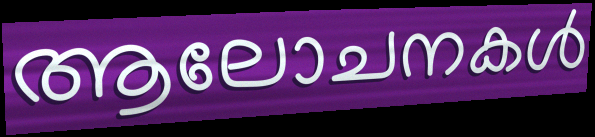
ആലോചനകൾ